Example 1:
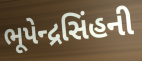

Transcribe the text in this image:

ભૂપેન્દ્રસિંહની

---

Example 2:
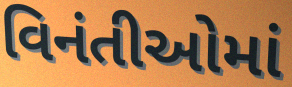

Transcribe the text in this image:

વિનંતીઓમાં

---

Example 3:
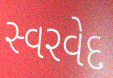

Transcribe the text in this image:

સ્વરવેદ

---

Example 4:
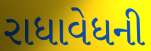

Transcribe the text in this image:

રાધાવેધની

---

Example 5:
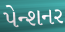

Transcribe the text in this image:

પેન્શનર